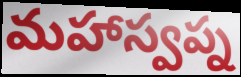
మహాస్వప్న